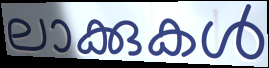
ലാക്കുകൾ